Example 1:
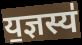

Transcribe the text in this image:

य॒ज्ञस्य॑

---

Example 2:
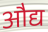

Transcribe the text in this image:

औद्य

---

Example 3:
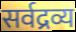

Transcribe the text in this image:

सर्वद्रव्य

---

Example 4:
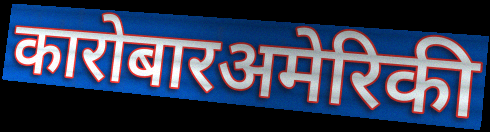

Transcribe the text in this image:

कारोबारअमेरिकी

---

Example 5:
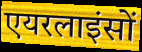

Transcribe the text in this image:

एयरलाइंसों